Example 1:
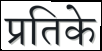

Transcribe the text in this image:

प्रतिके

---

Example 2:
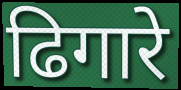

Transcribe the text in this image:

ढिगारे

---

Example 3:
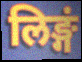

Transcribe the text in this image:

लिङ्गं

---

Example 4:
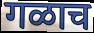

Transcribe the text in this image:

गळाच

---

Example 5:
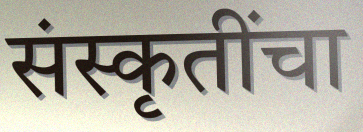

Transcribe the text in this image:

संस्कृतींचा